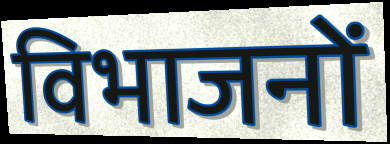
विभाजनों